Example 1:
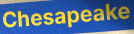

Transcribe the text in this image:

Chesapeake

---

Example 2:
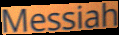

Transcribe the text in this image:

Messiah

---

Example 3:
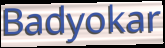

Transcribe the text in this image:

Badyokar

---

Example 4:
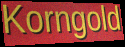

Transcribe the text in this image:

Korngold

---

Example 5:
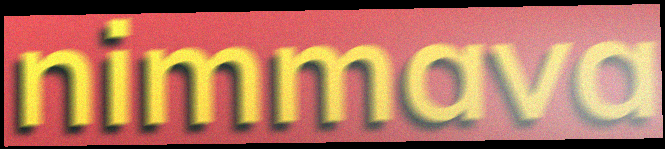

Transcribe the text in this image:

nimmava